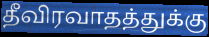
தீவிரவாதத்துக்கு